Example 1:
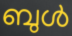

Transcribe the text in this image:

ബുൾ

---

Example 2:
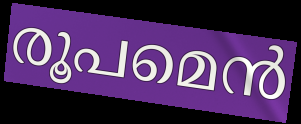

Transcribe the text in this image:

രൂപമെൻ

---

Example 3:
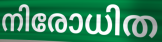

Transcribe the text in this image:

നിരോധിത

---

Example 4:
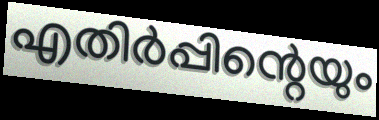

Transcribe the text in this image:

എതിർപ്പിന്റെയും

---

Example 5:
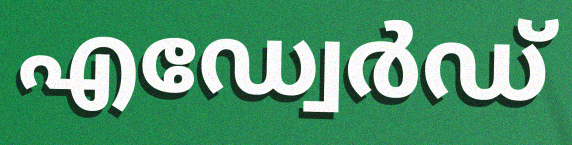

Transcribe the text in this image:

എഡ്വേർഡ്